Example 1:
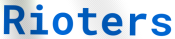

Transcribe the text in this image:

Rioters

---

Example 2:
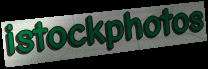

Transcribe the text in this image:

istockphotos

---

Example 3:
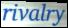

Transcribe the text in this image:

rivalry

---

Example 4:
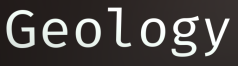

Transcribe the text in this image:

Geology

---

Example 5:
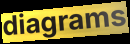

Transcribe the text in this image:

diagrams